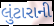
લુંટારાની